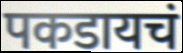
पकडायचं